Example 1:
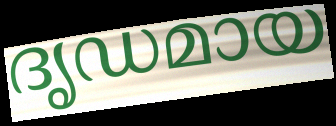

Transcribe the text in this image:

ദൃഡമായ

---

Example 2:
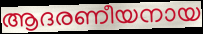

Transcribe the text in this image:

ആദരണീയനായ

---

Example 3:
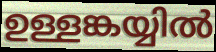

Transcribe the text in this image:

ഉള്ളങ്കയ്യിൽ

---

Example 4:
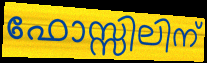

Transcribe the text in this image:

ഫോസ്സിലിന്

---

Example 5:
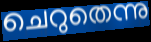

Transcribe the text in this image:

ചെറുതെന്നു